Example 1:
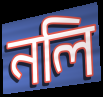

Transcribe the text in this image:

নলি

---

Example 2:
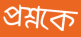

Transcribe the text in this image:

প্রশ্নকে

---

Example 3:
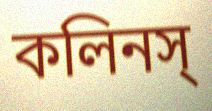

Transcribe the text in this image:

কলিনস্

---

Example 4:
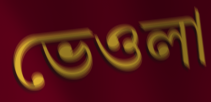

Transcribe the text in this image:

ভেওলা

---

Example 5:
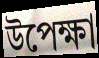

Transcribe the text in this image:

উপেক্ষা